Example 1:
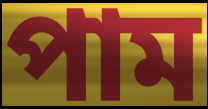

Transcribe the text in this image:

পাম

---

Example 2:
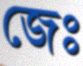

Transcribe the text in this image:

জেঃ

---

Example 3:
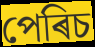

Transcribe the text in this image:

পেৰিচ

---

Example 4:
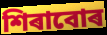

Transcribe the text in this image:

শিৰাবোৰ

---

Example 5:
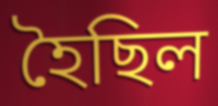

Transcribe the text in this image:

হৈছিল